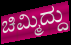
ಚಿಮ್ಮಿದ್ದು